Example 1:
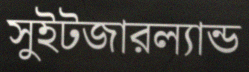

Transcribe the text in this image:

সুইটজারল্যান্ড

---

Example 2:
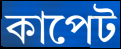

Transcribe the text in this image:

কাপেট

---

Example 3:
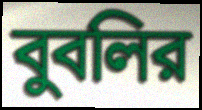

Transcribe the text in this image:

বুবলির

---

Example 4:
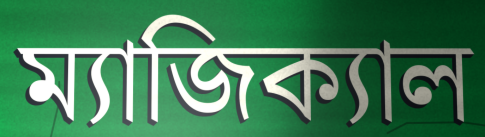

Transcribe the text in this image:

ম্যাজিক্যাল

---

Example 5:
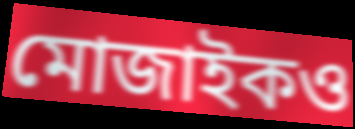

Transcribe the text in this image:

মোজাইকও